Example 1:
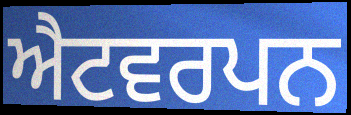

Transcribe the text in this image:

ਐਟਵਰਪਨ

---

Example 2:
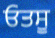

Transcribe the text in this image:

ਓਤਸੂ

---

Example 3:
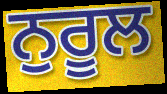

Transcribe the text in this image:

ਨੁਰੂਲ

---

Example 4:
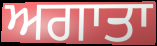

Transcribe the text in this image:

ਅਗਾਤਾ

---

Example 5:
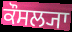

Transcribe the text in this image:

ਕੌਸਲ੍ਯਾ